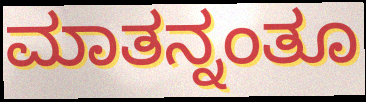
ಮಾತನ್ನಂತೂ